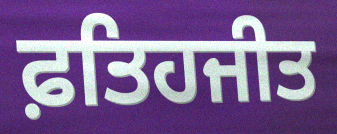
ਫ਼ਤਿਹਜੀਤ